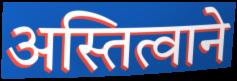
अस्तित्वाने